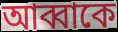
আব্বাকে